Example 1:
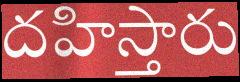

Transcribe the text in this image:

దహిస్తారు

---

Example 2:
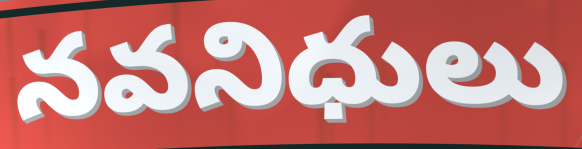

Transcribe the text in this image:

నవనిధులు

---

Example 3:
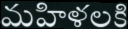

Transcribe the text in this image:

మహిళలకి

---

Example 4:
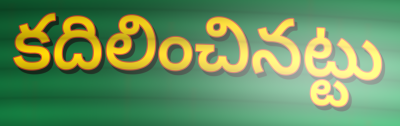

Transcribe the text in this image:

కదిలించినట్టు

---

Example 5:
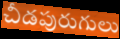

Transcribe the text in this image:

చీడపురుగులు